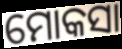
ମୋକସା